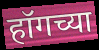
हॉगच्या